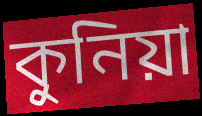
কুনিয়া